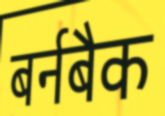
बर्नबैक